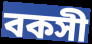
বকসী